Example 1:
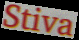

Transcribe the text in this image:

Stiva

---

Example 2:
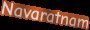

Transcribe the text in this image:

Navaratnam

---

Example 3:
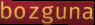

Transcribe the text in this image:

bozguna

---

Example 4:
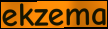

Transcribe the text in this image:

ekzema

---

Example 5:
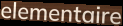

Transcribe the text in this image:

elementaire